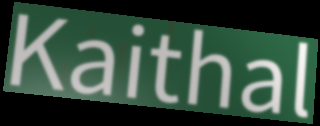
Kaithal